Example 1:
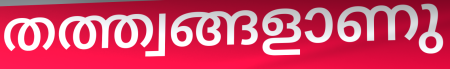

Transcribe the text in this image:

തത്ത്വങ്ങളാണു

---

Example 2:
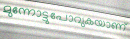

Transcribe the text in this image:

മുന്നോട്ടുപോവുകയാണ്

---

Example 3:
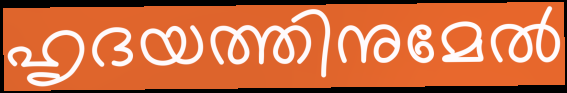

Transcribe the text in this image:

ഹൃദയത്തിനുമേൽ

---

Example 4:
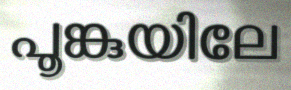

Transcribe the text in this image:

പൂങ്കുയിലേ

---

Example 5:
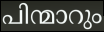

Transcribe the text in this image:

പിന്മാറും